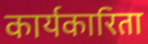
कार्यकारिता